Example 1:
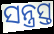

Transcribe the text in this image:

ସନ୍ତ୍ରସ୍ତ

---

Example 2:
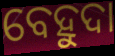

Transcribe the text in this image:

ବେହୁଦା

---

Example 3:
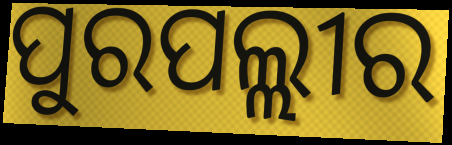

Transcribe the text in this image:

ପୁରପଲ୍ଲୀର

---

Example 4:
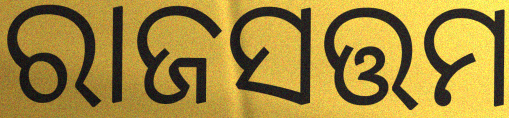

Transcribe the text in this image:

ରାଜସତ୍ତମ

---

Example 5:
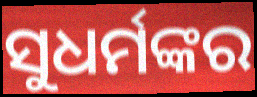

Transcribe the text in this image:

ସୁଧର୍ମଙ୍କର